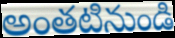
అంతటినుండి